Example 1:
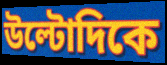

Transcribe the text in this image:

উল্টোদিকে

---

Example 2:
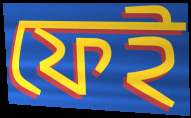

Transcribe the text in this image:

ফেই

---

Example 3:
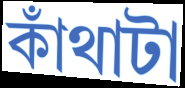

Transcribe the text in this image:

কাঁথাটা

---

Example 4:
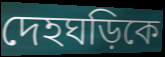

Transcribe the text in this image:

দেহঘড়িকে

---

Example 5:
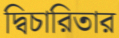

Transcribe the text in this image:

দ্বিচারিতার